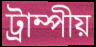
ট্রাম্পীয়